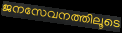
ജനസേവനത്തിലൂടെ